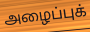
அழைப்புக்